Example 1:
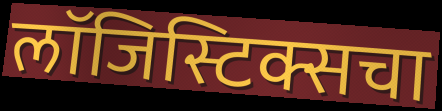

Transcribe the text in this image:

लॉजिस्टिक्सचा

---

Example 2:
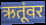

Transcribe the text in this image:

ऋतूंवर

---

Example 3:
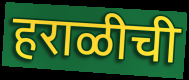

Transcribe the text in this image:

हराळीची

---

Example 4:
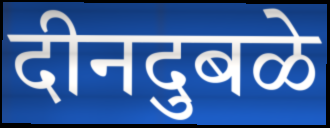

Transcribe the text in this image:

दीनदुबळे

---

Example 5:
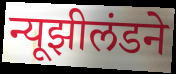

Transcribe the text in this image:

न्यूझीलंडने